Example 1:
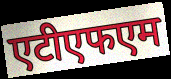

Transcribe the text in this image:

एटीएफएम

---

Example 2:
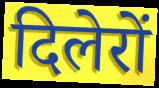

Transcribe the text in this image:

दिलेरों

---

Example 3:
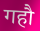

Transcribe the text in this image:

गहौ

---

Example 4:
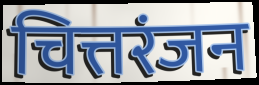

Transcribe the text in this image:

चित्तरंजन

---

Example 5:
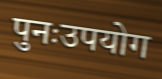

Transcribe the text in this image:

पुनःउपयोग